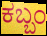
ಕಬ್ಬಂ